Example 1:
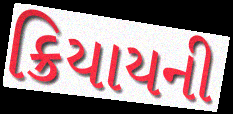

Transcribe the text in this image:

ક્રિયાયની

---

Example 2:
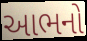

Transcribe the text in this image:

આભનો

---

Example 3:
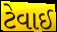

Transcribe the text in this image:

ટેવાઈ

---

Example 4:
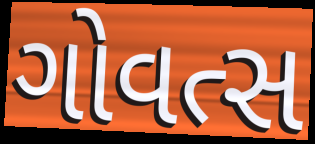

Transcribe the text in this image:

ગોવત્સ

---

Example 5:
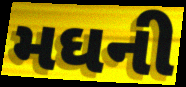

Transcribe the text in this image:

મઘની